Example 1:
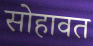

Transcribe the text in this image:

सोहावत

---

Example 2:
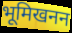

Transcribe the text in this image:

भूमिखनन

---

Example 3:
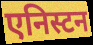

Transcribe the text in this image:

एनिस्टन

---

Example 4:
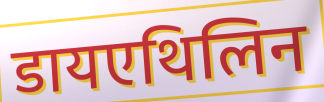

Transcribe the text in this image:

डायएथिलिन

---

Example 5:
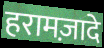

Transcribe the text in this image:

हरामज़ादे